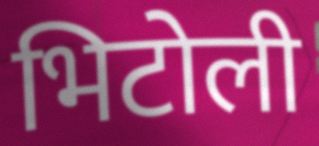
भिटोली